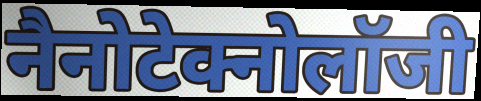
नैनोटेक्नोलॉजी